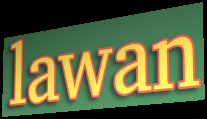
lawan